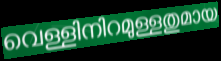
വെള്ളിനിറമുള്ളതുമായ